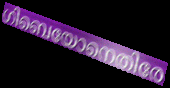
ഗിബെയോനെതിരേ